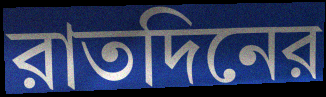
রাতদিনের